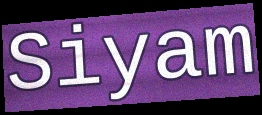
Siyam